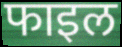
फाइल